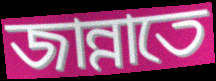
জান্নাতে